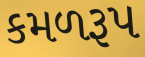
કમળરૂપ